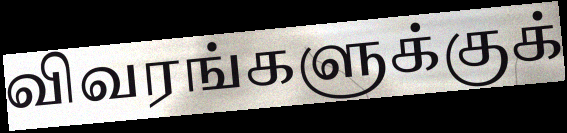
விவரங்களுக்குக்